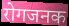
रोगजनक